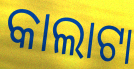
କାଲାଟା